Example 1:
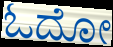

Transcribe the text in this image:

ಓದೋ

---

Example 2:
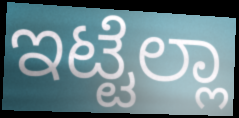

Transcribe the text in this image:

ಇಟ್ಟೆಲ್ಲಾ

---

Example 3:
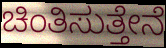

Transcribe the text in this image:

ಚಿಂತಿಸುತ್ತೇನೆ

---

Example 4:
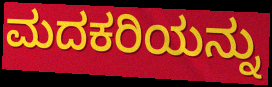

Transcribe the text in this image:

ಮದಕರಿಯನ್ನು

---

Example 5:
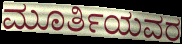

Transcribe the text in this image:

ಮೂರ್ತಿಯವರ